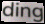
ding